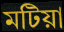
মটিয়া